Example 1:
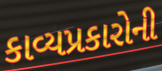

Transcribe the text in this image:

કાવ્યપ્રકારોની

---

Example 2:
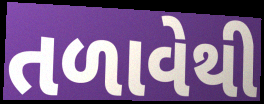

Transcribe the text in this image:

તળાવેથી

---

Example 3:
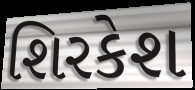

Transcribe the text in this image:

શિરકેશ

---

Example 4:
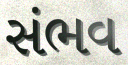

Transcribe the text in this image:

સંભવ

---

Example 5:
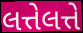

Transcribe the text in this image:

લત્તેલત્તે